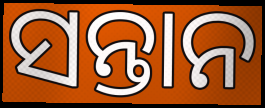
ସନ୍ତାନ